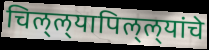
चिल्ल्यापिल्ल्यांचे